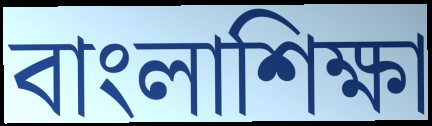
বাংলাশিক্ষা